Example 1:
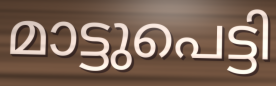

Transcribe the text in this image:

മാട്ടുപെട്ടി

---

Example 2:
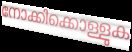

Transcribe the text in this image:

നോക്കിക്കൊള്ളുക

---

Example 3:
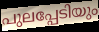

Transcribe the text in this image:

പുലപ്പേടിയും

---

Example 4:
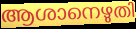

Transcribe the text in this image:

ആശാനെഴുതി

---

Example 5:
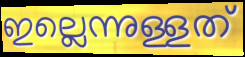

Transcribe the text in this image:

ഇല്ലെന്നുള്ളത്